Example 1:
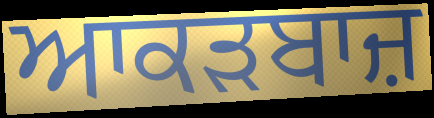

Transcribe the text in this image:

ਆਕੜਬਾਜ਼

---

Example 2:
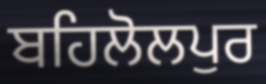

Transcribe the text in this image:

ਬਹਿਲੋਲਪੁਰ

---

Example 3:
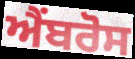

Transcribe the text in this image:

ਐਂਬਰੋਸ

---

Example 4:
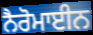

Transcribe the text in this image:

ਨੈਰੋਮਾਈਨ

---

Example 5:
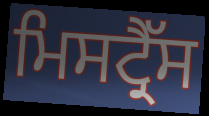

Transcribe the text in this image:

ਮਿਸਟ੍ਰੈੱਸ